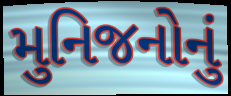
મુનિજનોનું